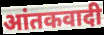
आंतकवादी